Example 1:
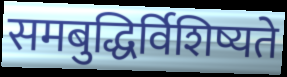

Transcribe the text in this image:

समबुद्धिर्विशिष्यते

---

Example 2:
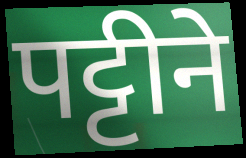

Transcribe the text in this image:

पट्टीने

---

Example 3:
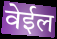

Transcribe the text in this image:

वेईल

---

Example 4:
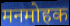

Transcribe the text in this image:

मनमोहक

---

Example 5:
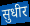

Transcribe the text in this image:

सुधीर